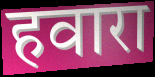
हवारा